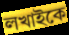
লখাইকে